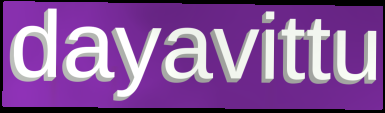
dayavittu